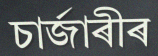
চাৰ্জাৰীৰ